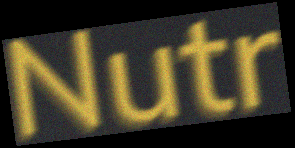
Nutr